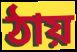
ঠায়